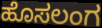
ಹೊಸಲಂಗ